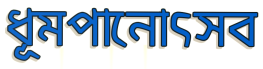
ধূমপানোৎসব